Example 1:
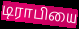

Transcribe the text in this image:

டிராபியை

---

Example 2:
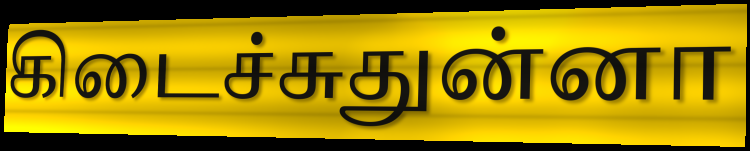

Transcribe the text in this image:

கிடைச்சுதுன்னா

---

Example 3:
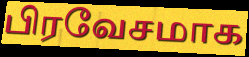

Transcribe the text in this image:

பிரவேசமாக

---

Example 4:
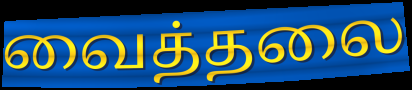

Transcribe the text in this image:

வைத்தலை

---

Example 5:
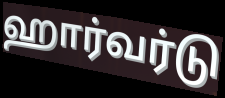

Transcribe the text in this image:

ஹார்வர்டு